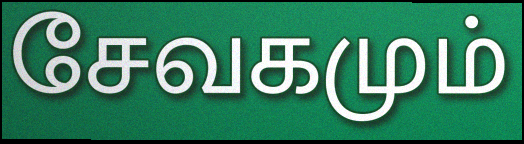
சேவகமும்